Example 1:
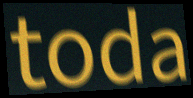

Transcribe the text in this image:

toda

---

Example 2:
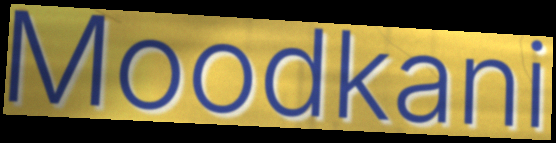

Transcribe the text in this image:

Moodkani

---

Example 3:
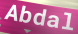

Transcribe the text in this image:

Abdal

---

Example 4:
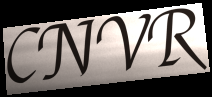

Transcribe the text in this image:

CNVR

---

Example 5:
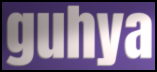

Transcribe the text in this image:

guhya